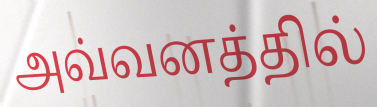
அவ்வனத்தில்